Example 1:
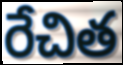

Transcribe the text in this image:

రేచిత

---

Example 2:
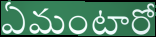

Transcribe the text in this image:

ఏమంటారో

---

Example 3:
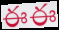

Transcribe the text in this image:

ఈఈ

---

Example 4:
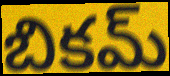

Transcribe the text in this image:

బికమ్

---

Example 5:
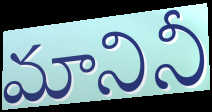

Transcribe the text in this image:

మానినీ